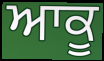
ਆਕੂ